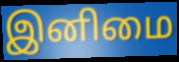
இனிமை